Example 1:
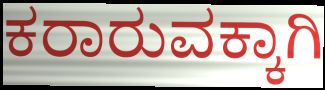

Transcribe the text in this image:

ಕರಾರುವಕ್ಕಾಗಿ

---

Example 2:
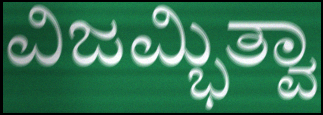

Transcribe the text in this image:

ವಿಜಮ್ಭಿತ್ವಾ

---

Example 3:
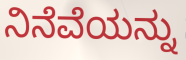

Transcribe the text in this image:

ನಿನೆವೆಯನ್ನು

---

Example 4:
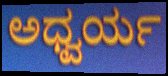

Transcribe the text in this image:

ಅಧ್ವರ್ಯ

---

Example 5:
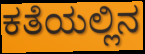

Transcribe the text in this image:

ಕತೆಯಲ್ಲಿನ